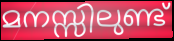
മനസ്സിലുണ്ട്